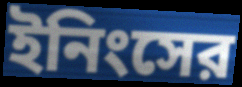
ইনিংসের